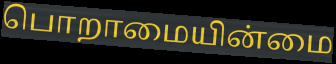
பொறாமையின்மை